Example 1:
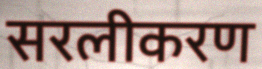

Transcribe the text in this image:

सरलीकरण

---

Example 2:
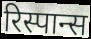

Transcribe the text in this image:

रिस्पान्स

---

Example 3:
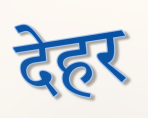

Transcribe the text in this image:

देहर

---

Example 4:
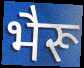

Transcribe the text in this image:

भैरू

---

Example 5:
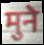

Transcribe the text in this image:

मुने